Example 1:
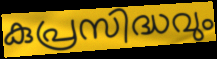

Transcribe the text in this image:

കുപ്രസിദ്ധവും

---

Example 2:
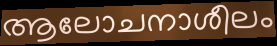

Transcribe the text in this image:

ആലോചനാശീലം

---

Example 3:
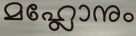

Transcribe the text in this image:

മഹ്ലോനും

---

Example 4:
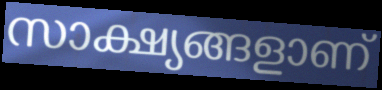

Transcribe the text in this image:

സാക്ഷ്യങ്ങളാണ്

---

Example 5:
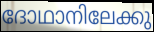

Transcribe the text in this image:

ദോഥാനിലേക്കു